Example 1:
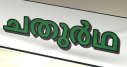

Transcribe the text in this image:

ചതുർഥ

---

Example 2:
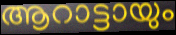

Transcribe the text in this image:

ആറാട്ടായും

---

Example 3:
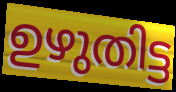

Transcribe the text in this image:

ഉഴുതിട്ട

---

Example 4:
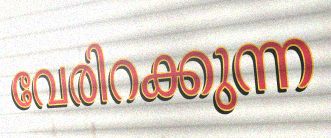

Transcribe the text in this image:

വേരിറക്കുന്ന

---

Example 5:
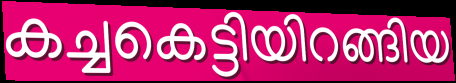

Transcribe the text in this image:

കച്ചകെട്ടിയിറങ്ങിയ